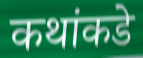
कथांकडे